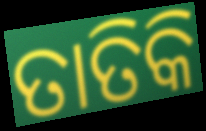
ତାତିକି